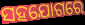
ସହଯୋଗରେ